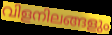
വിളനിലങ്ങളും